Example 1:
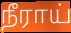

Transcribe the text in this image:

நீராய்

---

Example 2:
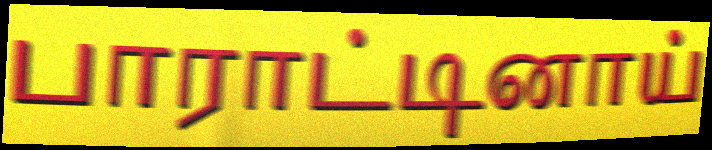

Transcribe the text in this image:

பாராட்டினாய்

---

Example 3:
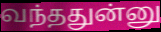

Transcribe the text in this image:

வந்ததுன்னு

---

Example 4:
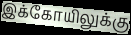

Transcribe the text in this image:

இக்கோயிலுக்கு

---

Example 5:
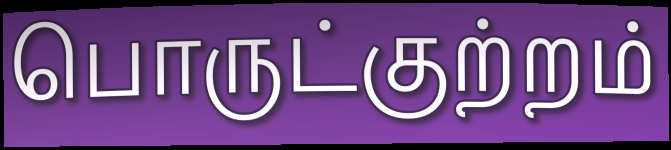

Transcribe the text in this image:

பொருட்குற்றம்